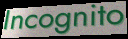
Incognito